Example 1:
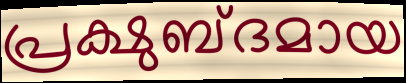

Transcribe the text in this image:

പ്രക്ഷുബ്ദമായ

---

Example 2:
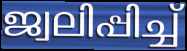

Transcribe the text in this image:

ജ്വലിപ്പിച്ച്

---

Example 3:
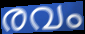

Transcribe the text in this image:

രവം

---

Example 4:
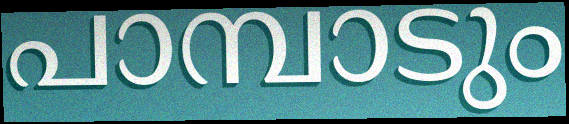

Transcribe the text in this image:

പാമ്പാടും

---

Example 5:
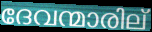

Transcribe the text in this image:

ദേവന്മാരില്